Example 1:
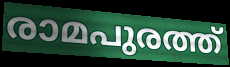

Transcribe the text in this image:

രാമപുരത്ത്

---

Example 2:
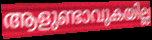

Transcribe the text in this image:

ആളുണ്ടാവുകയില്ല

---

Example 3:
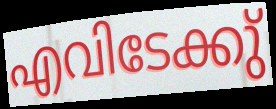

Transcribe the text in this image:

എവിടേക്കു്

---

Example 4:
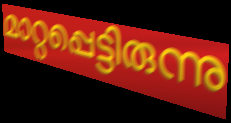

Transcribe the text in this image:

മാറ്റപ്പെട്ടിരുന്നു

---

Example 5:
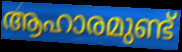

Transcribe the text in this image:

ആഹാരമുണ്ട്